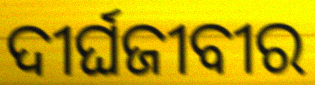
ଦୀର୍ଘଜୀବୀର